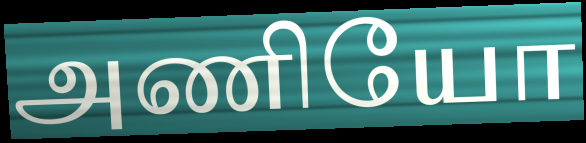
அணியோ